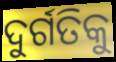
ଦୁର୍ଗତିକୁ